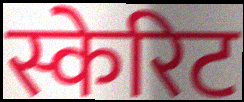
स्केरिट